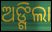
ଅଙ୍ଗିଲା